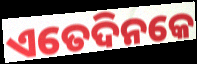
ଏତେଦିନକେ